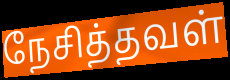
நேசித்தவள்